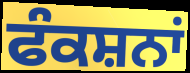
ਫੰਕਸ਼ਨਾਂ